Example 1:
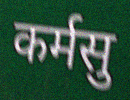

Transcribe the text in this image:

कर्मसु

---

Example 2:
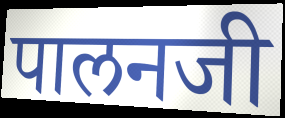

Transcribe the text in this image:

पालनजी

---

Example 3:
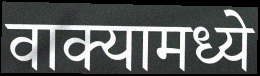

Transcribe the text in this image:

वाक्यामध्ये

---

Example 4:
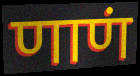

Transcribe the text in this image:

णाणं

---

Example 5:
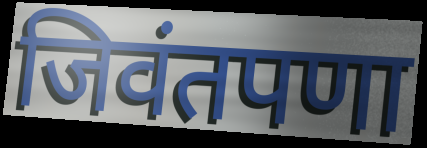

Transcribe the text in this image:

जिवंतपणा